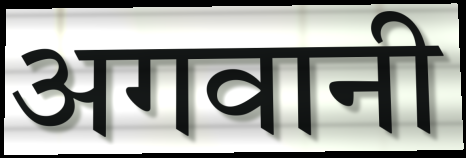
अगवानी